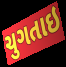
ચુગતાઇ